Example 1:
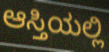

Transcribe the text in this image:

ಆಸ್ತಿಯಲ್ಲಿ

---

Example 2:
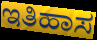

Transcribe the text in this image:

ಇತಿಹಾಸ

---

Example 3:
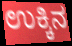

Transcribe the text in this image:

ಉಕ್ಕಿನ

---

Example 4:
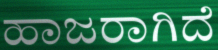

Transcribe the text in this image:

ಹಾಜರಾಗಿದೆ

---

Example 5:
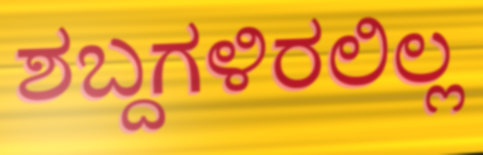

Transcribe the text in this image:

ಶಬ್ದಗಳಿರಲಿಲ್ಲ